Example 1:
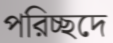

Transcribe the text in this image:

পরিচ্ছদে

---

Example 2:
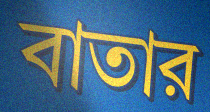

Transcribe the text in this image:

বাতার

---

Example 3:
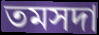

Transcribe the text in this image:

তমসদা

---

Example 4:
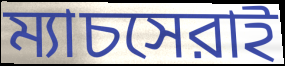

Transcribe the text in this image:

ম্যাচসেরাই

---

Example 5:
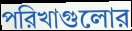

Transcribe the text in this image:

পরিখাগুলোর